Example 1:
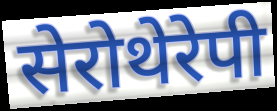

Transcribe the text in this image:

सेरोथेरेपी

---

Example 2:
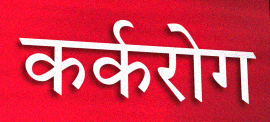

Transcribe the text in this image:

कर्करोग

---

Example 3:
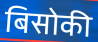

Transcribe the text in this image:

बिसोकी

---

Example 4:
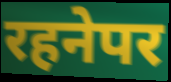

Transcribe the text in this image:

रहनेपर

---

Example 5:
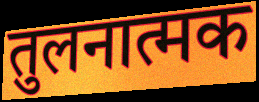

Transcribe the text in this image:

तुलनात्मक